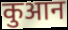
कुआन